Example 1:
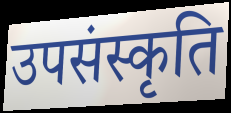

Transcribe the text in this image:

उपसंस्कृति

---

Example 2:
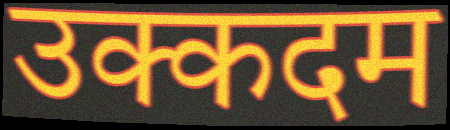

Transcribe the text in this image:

उक्कदम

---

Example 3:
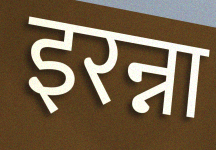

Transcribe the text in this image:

इरन्ना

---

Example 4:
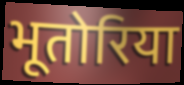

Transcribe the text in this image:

भूतोरिया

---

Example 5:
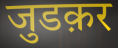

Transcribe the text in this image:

जुडक़र